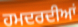
ਹਮਦਰਦੀਆਂ